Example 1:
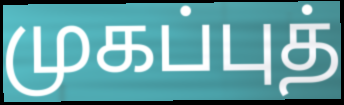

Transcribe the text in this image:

முகப்புத்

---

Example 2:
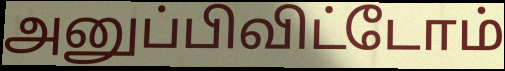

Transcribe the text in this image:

அனுப்பிவிட்டோம்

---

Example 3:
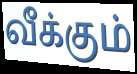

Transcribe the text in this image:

வீக்கும்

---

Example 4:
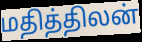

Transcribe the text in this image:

மதித்திலன்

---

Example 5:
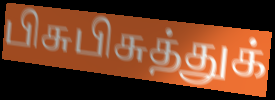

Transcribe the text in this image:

பிசுபிசுத்துக்